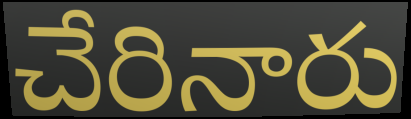
చేరినారు